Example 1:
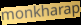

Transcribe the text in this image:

monkharap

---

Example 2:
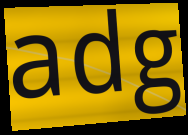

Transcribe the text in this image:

adg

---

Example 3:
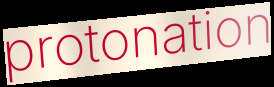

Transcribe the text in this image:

protonation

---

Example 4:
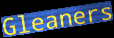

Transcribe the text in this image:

Gleaners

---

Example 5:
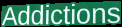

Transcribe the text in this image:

Addictions